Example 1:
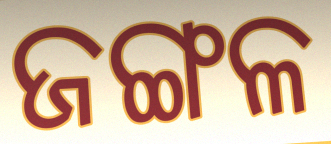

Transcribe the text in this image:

ଜଙ୍ଗଳ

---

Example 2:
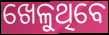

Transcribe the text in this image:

ଖେଳୁଥିବେ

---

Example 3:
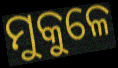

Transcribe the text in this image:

ମୁକୁଳେ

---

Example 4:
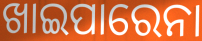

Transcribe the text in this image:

ଖାଇପାରେନା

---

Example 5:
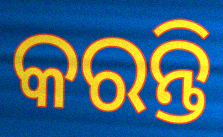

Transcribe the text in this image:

କରନ୍ତି